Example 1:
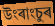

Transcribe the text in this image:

উংৰাংচুৰ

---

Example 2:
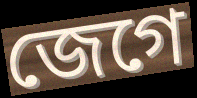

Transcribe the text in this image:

জেগে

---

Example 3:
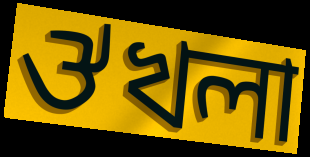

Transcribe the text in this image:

ঔখলা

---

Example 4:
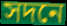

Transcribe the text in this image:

সদনে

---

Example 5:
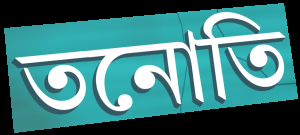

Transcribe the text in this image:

তনোতি